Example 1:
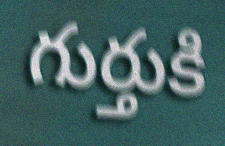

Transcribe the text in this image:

గుర్తుకి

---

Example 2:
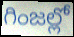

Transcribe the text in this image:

గింజల్లో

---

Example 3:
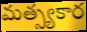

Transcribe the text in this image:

మత్స్యకార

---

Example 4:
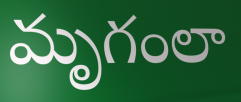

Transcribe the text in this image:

మృగంలా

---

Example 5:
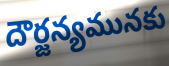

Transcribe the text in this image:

దౌర్జన్యమునకు